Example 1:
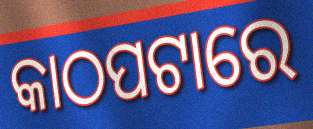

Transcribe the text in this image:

କାଠପଟାରେ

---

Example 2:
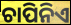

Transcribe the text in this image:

ଚାପିନିଏ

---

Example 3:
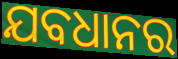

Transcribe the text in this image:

ଯବଧାନର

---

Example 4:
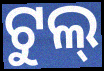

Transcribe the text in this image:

ଟୁଲ୍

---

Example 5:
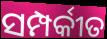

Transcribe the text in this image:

ସମ୍ପର୍କୀତ